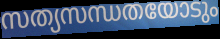
സത്യസന്ധതയോടും